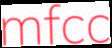
mfcc